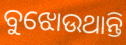
ବୁଝୋଉଥାନ୍ତି